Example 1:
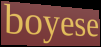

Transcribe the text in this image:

boyese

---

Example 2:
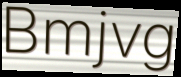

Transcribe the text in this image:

Bmjvg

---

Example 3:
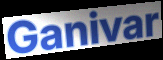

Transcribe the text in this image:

Ganivar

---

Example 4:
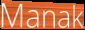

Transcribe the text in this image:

Manak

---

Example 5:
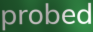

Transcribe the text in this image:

probed